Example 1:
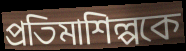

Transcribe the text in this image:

প্রতিমাশিল্পকে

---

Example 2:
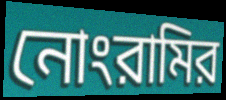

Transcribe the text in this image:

নোংরামির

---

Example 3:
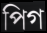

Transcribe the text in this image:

পিগ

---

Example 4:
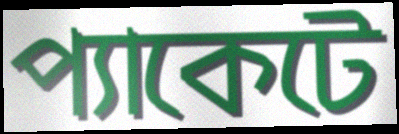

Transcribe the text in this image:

প্যাকেটে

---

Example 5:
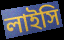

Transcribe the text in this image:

লাইসি